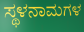
ಸ್ಥಳನಾಮಗಳ